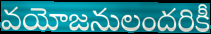
వయోజనులందరికీ